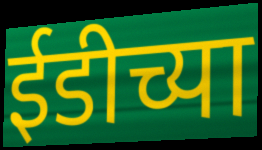
ईडीच्या